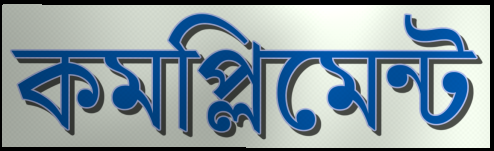
কমপ্লিমেন্ট